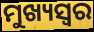
ମୁଖ୍ୟସ୍ୱର